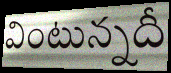
వింటున్నదీ